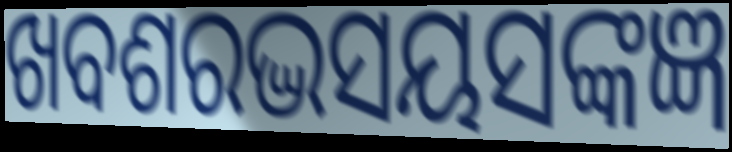
ଖବଶରଦ୍ଭସୟସଙ୍କଜ୍ଞ